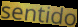
sentido